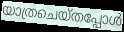
യാത്രചെയ്തപ്പോൾ